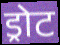
ड्रोट